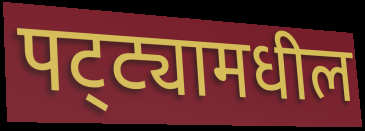
पट्ट्यामधील